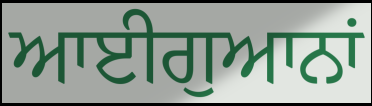
ਆਈਗੁਆਨਾਂ